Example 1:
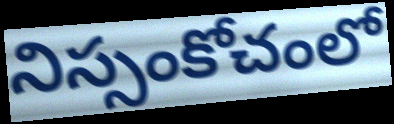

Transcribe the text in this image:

నిస్సంకోచంలో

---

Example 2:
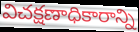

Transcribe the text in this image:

విచక్షణాధికారాన్ని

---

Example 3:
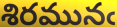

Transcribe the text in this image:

శిరమునఁ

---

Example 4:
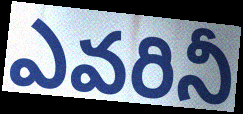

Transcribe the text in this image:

ఎవరినీ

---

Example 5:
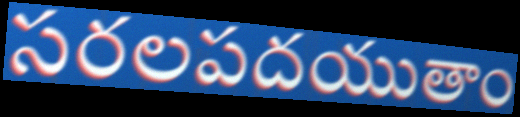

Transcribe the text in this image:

సరలపదయుతాం